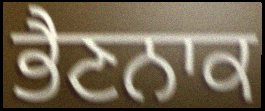
ਭੈਣਨਾਕ